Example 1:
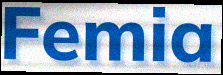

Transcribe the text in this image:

Femia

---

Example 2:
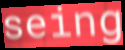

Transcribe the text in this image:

seing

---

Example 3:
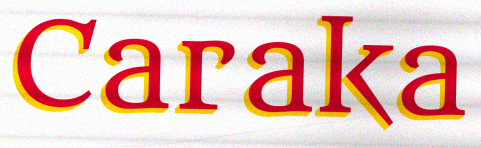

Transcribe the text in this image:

Caraka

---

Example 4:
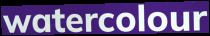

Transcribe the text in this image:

watercolour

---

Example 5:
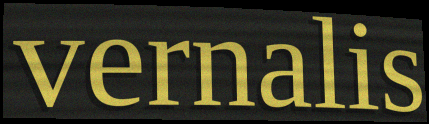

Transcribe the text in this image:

vernalis